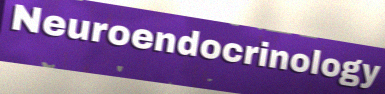
Neuroendocrinology